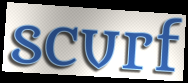
scurf